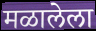
मळालेला